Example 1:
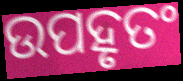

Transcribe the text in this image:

ଉପହୃତଂ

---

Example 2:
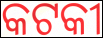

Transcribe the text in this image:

କଟକୀ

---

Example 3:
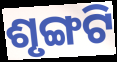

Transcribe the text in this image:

ଶୃଙ୍ଗଟି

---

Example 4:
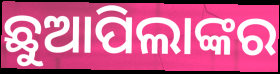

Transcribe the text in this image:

ଛୁଆପିଲାଙ୍କର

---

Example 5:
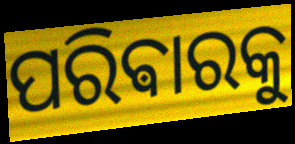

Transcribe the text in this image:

ପରିଵାରକୁ